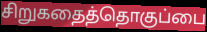
சிறுகதைத்தொகுப்பை